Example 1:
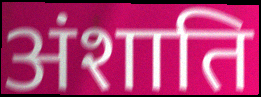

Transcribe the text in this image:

अंशाति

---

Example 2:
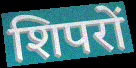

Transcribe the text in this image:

शिपरों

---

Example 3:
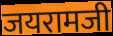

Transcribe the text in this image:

जयरामजी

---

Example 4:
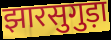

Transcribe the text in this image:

झारसुगुड़ा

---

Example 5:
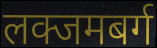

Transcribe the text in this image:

लक्जमबर्ग